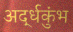
अर्द्धकुंभ